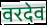
वरदेव